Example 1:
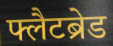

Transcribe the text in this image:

फ्लैटब्रेड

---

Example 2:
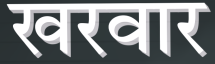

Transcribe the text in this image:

खरवार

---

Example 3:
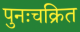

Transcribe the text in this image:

पुनःचक्रित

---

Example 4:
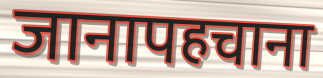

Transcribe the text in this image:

जानापहचाना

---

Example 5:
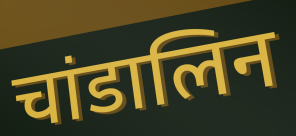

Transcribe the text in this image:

चांडालिन